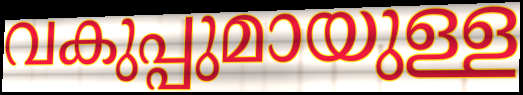
വകുപ്പുമായുള്ള